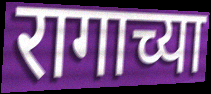
रागाच्या